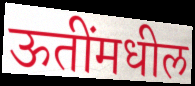
ऊतींमधील